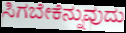
ಸಿಗಬೇಕೆನ್ನುವುದು